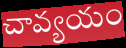
చావ్యయం